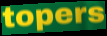
topers